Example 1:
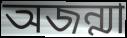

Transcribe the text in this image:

অজন্মা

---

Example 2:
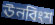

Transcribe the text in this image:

ঊনবিংশ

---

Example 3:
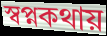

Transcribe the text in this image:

স্বপ্নকথায়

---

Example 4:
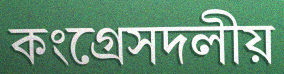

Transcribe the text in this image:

কংগ্রেসদলীয়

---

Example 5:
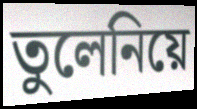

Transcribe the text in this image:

তুলেনিয়ে